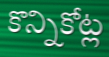
కొన్నికోట్ల